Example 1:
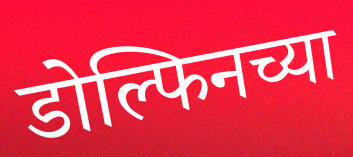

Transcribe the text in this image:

डोल्फिनच्या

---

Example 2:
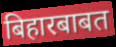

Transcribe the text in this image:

बिहारबाबत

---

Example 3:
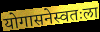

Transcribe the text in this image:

योगासनेस्वतःला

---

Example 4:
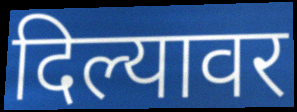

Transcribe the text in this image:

दिल्यावर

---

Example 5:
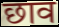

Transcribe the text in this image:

छाव